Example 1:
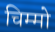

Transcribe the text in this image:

चिम्मो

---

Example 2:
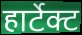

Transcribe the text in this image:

हार्टेक्ट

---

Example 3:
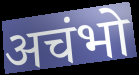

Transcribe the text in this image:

अचंभो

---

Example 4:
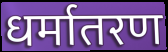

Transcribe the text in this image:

धर्मातरण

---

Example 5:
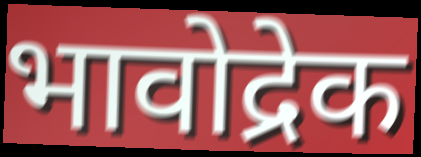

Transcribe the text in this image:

भावोद्रेक